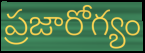
ప్రజారోగ్యం